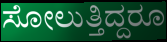
ಸೋಲುತ್ತಿದ್ದರೂ